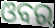
ଓବର